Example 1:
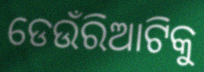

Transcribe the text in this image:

ଡେଉଁରିଆଟିକୁ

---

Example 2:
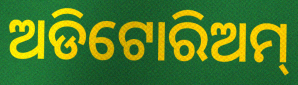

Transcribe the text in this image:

ଅଡିଟୋରିଅମ୍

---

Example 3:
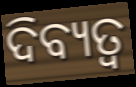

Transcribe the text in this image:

ଦିବ୍ୟତ୍ବ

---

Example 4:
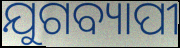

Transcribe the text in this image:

ଯୁଗବ୍ୟାପୀ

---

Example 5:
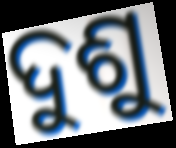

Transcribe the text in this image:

ଦୁଶୁ